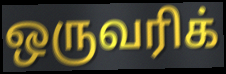
ஒருவரிக்